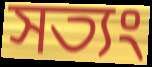
সত্যং